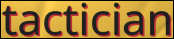
tactician